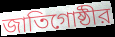
জাতিগোষ্ঠীর